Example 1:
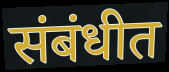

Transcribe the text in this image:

संबंधीत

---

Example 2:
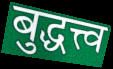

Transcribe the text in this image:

बुद्धत्त्व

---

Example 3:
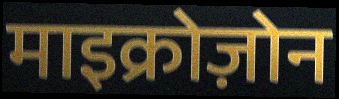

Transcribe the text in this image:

माइक्रोज़ोन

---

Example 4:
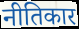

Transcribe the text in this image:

नीतिकार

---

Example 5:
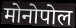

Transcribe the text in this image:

मोनोपोल